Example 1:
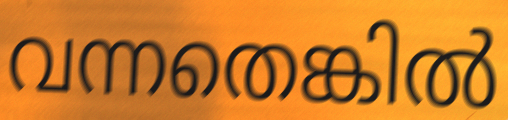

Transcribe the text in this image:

വന്നതെങ്കിൽ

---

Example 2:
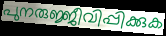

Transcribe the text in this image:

പുനരുജ്ജീവിപ്പിക്കുക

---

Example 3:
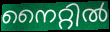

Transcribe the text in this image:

നൈറ്റിൽ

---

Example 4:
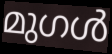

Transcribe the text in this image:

മുഗൾ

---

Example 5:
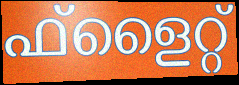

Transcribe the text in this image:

ഫ്ളൈറ്റ്